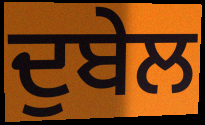
ਦੁਬੇਲ